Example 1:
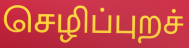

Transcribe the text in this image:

செழிப்புறச்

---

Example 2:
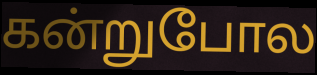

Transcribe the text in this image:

கன்றுபோல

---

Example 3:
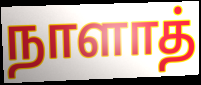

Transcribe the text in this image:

நாளாத்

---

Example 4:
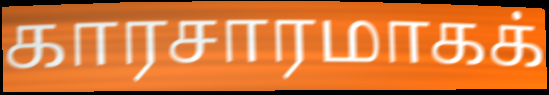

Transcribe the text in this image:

காரசாரமாகக்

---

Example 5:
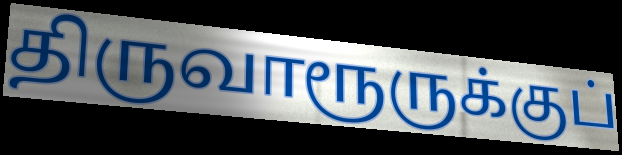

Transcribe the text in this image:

திருவாரூருக்குப்